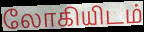
லோகியிடம்